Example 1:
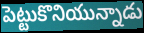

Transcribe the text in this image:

పెట్టుకొనియున్నాడు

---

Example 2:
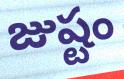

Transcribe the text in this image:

జుష్టం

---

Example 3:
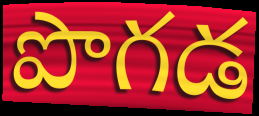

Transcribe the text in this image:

పొగడ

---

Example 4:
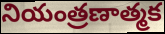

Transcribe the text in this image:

నియంత్రణాత్మక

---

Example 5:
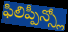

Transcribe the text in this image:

ఫిలిప్పీన్స్లో